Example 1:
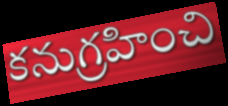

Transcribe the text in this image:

కనుగ్రహించి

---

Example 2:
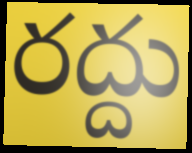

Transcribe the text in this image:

రద్దు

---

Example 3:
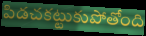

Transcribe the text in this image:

పిడచకట్టుకుపోతోంది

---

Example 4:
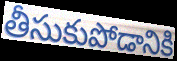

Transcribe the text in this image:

తీసుకుపోడానికి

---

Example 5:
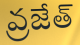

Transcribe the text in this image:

వ్రజేత్